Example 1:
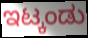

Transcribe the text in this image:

ಇಟ್ಕಂಡು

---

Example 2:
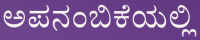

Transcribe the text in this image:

ಅಪನಂಬಿಕೆಯಲ್ಲಿ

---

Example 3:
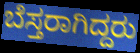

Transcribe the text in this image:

ಬೆಸ್ತರಾಗಿದ್ದರು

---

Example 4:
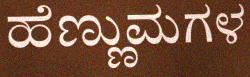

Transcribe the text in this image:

ಹೆಣ್ಣುಮಗಳ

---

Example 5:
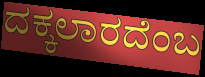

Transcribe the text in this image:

ದಕ್ಕಲಾರದೆಂಬ